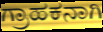
ಗ್ರಾಹಕನಾಗಿ